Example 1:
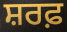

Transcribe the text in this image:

ਸ਼ਰਫ਼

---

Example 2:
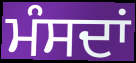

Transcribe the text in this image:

ਮੰਸਦਾਂ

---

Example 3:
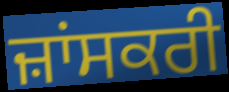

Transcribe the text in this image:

ਜ਼ਾਂਸਕਰੀ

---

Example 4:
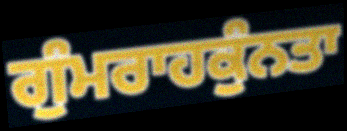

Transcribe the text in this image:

ਗੁੰਮਰਾਹਕੁੰਨਤਾ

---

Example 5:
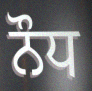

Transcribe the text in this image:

ਨੌਧ